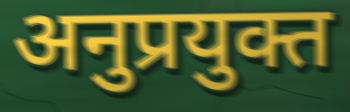
अनुप्रयुक्त